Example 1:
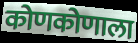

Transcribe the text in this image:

कोणकोणाला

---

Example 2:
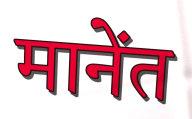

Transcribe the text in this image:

मानेंत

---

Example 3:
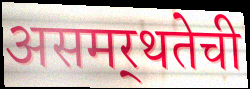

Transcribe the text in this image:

असमर्थतेची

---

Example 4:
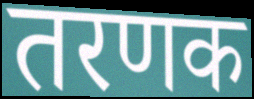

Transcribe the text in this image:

तरणक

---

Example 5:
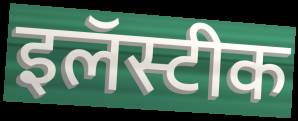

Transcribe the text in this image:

इलॅस्टीक